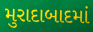
મુરાદાબાદમાં